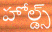
హోల్డ్స్